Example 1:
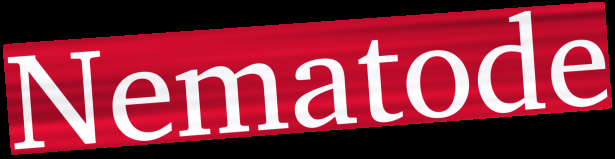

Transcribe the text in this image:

Nematode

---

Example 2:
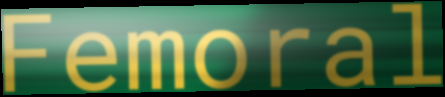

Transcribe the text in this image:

Femoral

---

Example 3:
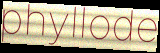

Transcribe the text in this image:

phyllode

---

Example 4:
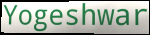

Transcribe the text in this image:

Yogeshwar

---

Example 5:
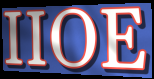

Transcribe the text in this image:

IIOE